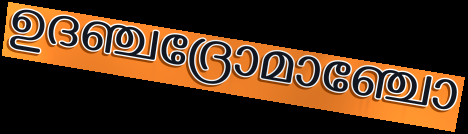
ഉദഞ്ചദ്രോമാഞ്ചോ